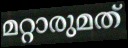
മറ്റാരുമത്